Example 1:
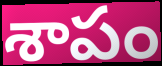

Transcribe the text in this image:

శాపం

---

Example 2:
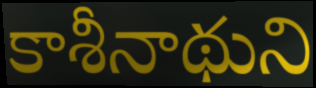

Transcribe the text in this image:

కాశీనాథుని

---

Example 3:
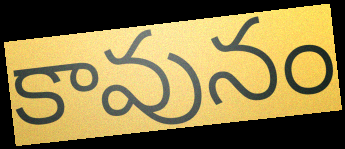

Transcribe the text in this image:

కావునం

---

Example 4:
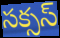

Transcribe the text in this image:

సక్సస్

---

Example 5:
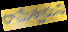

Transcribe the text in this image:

రామేశ్వరుని